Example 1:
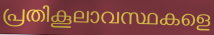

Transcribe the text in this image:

പ്രതികൂലാവസ്ഥകളെ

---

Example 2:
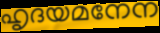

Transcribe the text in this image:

ഹൃദയമനേന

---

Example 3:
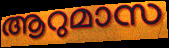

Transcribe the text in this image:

ആറുമാസ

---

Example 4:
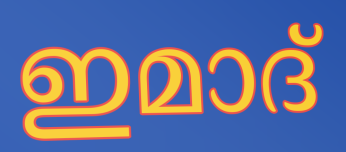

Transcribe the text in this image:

ഇമാദ്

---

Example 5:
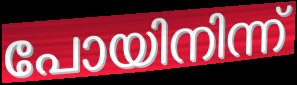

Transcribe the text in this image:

പോയിനിന്ന്